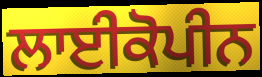
ਲਾਈਕੋਪੀਨ